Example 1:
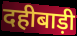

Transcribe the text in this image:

दहीबाड़ी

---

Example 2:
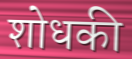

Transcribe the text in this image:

शोधकी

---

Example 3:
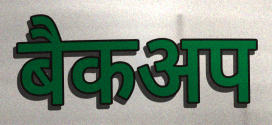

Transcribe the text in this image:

बैकअप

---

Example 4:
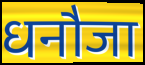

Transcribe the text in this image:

धनौजा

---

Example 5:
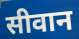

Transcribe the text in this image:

सीवान